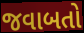
જવાબતો